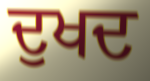
ਦੁਖਦ